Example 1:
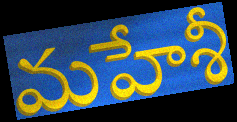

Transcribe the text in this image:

మహేశీ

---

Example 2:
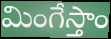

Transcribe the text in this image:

మింగేస్తాం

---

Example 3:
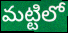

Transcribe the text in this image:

మట్టిలో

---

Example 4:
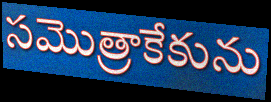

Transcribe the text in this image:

సమొత్రాకేకును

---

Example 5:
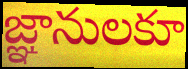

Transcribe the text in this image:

జ్ఞానులకూ